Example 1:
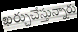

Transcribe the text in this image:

ఖర్చుచేస్తున్నారు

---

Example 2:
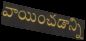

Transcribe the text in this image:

వాయించడాన్ని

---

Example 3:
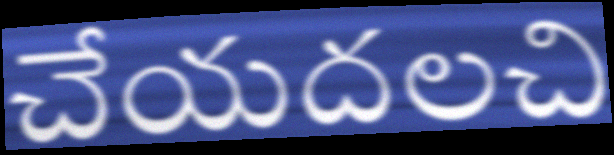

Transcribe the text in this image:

చేయదలచి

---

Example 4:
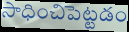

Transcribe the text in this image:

సాధించిపెట్టడం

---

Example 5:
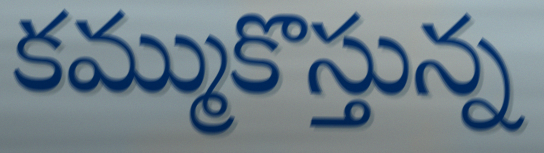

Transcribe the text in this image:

కమ్ముకొస్తున్న